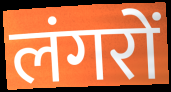
लंगरों